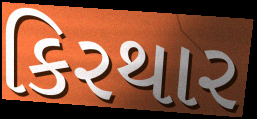
કિરથાર